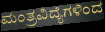
ಮಂತ್ರವಿದ್ಯೆಗಳಿಂದ